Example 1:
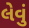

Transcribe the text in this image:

લેવું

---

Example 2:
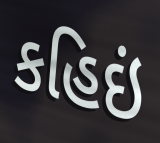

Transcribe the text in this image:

કહિઇં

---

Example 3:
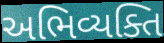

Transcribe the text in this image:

અભિવ્યક્તિ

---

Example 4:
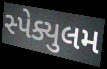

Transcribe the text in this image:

સ્પેક્યુલમ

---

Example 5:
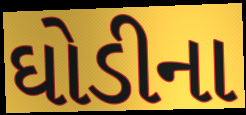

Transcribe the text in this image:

ઘોડીના